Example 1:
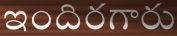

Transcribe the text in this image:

ఇందిరగారు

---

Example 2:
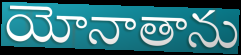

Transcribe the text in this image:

యోనాతాను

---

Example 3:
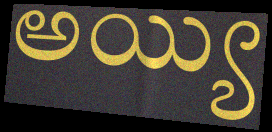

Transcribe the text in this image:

అయ్యి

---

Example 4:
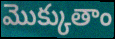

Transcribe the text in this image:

మొక్కుతాం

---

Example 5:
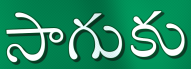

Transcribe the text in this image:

సాగుకు